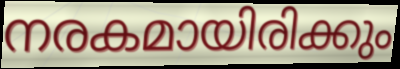
നരകമായിരിക്കും